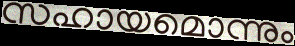
സഹായമൊന്നും